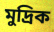
মুদ্রিক